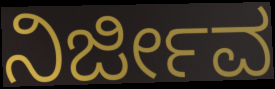
ನಿರ್ಜೀವ